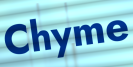
Chyme